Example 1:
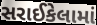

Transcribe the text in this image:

સરાઈકેલામાં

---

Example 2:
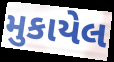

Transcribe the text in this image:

મુકાયેલ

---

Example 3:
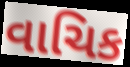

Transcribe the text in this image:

વાચિક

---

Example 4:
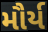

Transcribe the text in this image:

મૌર્ય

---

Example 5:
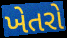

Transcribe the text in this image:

ખેતરો